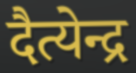
दैत्येन्द्र